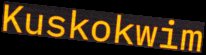
Kuskokwim